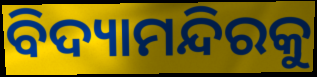
ବିଦ୍ୟାମନ୍ଦିରକୁ